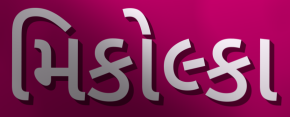
મિકોલ્કા